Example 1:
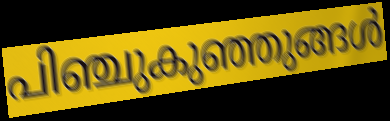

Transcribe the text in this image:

പിഞ്ചുകുഞ്ഞുങ്ങൾ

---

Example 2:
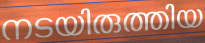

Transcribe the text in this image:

നടയിരുത്തിയ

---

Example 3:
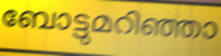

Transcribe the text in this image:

ബോട്ടുമറിഞ്ഞാ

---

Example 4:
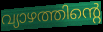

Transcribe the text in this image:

വ്യാഴത്തിന്റെ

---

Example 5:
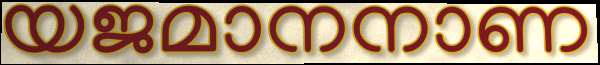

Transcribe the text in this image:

യജമാനനാണ